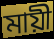
মায়ী